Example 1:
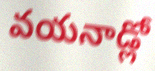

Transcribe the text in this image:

వయనాడ్లో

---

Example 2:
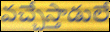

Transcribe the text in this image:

వచ్చేస్తాడులే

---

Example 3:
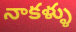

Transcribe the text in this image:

నాకళ్ళు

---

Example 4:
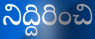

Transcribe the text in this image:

నిద్దిరించి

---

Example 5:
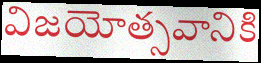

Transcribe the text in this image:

విజయోత్సవానికి